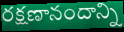
రక్షణానందాన్ని